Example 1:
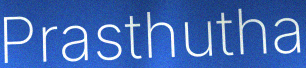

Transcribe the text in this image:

Prasthutha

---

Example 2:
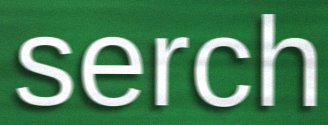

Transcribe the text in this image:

serch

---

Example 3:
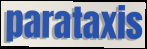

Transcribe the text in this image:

parataxis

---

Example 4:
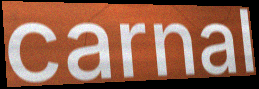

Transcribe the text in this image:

carnal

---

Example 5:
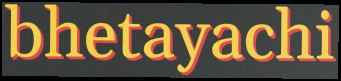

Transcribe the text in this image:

bhetayachi